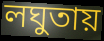
লঘুতায়